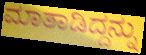
ಮಾತಾಡಿದ್ದನ್ನು